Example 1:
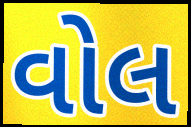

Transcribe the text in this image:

વોલ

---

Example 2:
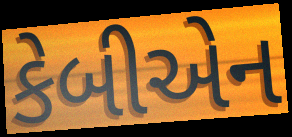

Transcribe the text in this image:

કેબીએન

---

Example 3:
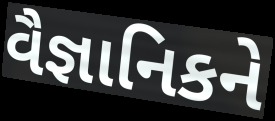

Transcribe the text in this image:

વૈજ્ઞાનિકને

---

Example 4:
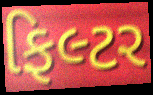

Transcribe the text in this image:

ફિલ્ટર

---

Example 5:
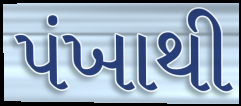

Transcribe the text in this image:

પંખાથી